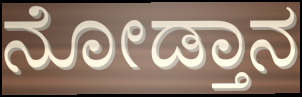
ನೋಡ್ತಾನ